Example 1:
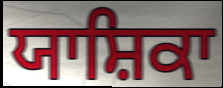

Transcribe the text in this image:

ਯਾਸ਼ਿਕਾ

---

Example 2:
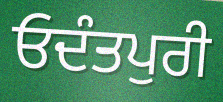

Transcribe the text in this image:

ਓਦੰਤਪੁਰੀ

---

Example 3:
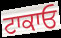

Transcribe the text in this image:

ਟਾਕਾਓ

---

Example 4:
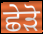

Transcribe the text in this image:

ਛੇੜੋ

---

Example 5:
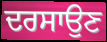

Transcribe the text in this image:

ਦਰਸਾਉਣ